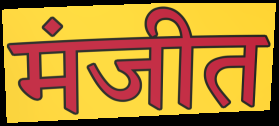
मंजीत